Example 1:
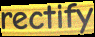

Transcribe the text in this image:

rectify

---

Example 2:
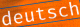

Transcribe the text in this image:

deutsch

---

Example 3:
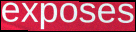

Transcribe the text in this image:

exposes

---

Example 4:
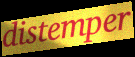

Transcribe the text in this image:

distemper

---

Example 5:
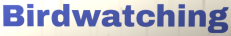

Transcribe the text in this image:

Birdwatching